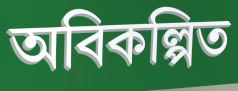
অবিকল্পিত